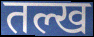
तल्ख